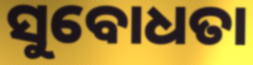
ସୁବୋଧତା